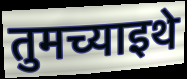
तुमच्याइथे